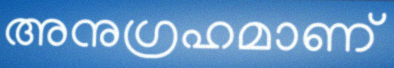
അനുഗ്രഹമാണ്